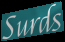
Surds